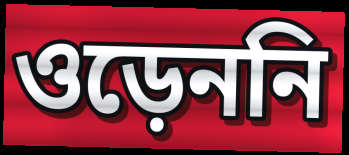
ওড়েননি